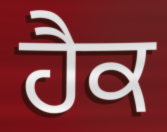
ਹੈਕ